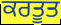
ਕਰਤੂਤ